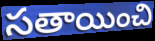
సతాయించి